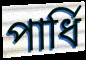
পাৰ্ধি